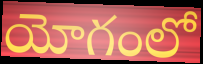
యోగంలో